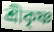
শ্ৰীকৃষ্ণ